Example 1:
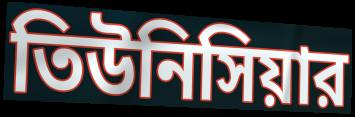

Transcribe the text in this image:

তিউনিসিয়ার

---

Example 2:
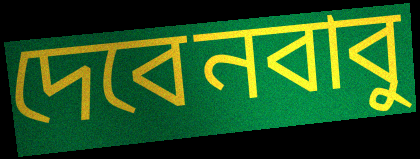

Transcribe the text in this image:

দেবেনবাবু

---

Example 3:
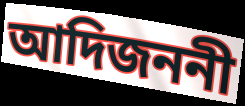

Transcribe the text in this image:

আদিজননী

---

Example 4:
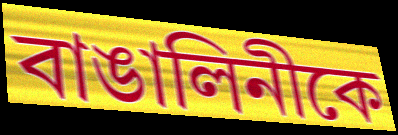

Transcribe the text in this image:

বাঙালিনীকে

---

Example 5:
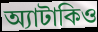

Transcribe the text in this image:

অ্যাটাকিও